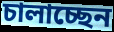
চালাচ্ছেন